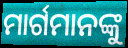
ମାର୍ଗମାନଙ୍କୁ